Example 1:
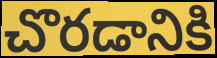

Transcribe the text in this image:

చొరడానికి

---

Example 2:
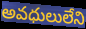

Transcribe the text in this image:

అవధులులేని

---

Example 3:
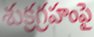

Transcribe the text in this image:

శుక్రగ్రహంపై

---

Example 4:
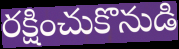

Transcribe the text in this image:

రక్షించుకొనుడి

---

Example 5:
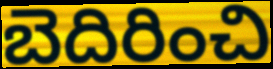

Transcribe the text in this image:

బెదిరించి